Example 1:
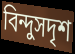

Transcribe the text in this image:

বিন্দুসদৃশ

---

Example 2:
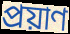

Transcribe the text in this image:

প্ৰয়াণ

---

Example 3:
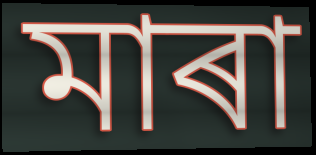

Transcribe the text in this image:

মাৰা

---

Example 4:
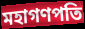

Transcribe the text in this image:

মহাগণপতি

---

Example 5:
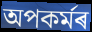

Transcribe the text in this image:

অপকৰ্মৰ